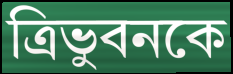
ত্রিভুবনকে